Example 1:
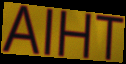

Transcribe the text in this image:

AIHT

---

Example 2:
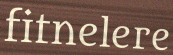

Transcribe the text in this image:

fitnelere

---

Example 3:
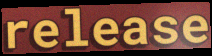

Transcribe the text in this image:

release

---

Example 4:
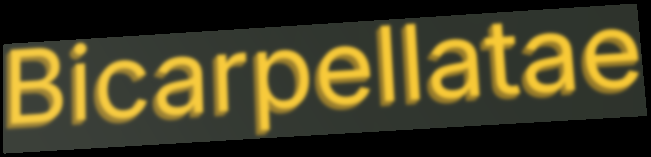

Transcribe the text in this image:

Bicarpellatae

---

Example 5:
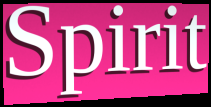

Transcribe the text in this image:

Spirit